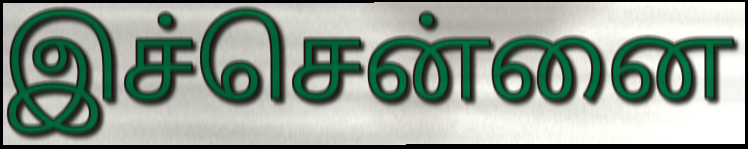
இச்சென்னை